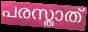
പരസ്താത്